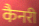
कैनरी